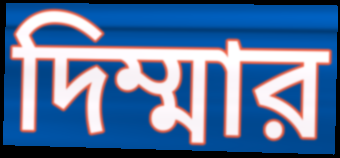
দিম্মার